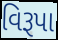
વિરૂપા